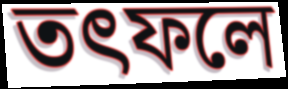
তৎফলে